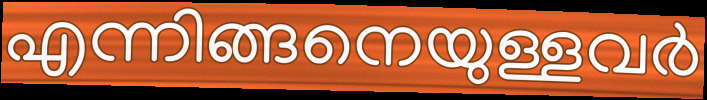
എന്നിങ്ങനെയുള്ളവർ